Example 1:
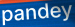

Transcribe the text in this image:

pandey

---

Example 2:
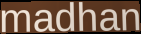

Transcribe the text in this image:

madhan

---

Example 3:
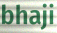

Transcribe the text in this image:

bhaji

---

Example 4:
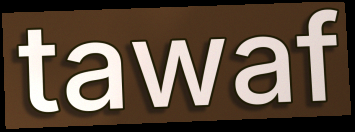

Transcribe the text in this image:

tawaf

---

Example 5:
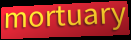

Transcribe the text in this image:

mortuary